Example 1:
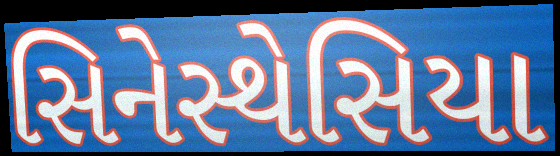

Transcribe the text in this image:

સિનેસ્થેસિયા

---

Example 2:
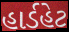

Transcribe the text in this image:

હાર્ડહેટ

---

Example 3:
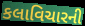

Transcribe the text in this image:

કલાવિચારની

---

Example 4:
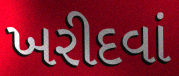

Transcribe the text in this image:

ખરીદવાં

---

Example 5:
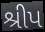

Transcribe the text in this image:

શ્રીપ